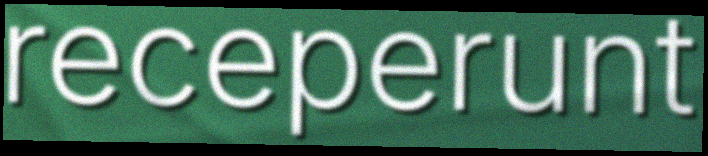
receperunt